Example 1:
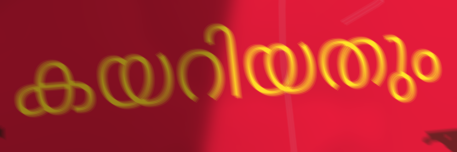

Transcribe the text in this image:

കയറിയതും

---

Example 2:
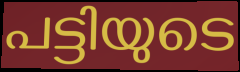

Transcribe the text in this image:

പട്ടിയുടെ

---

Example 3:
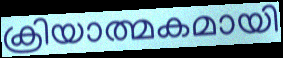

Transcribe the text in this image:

ക്രിയാത്മകമായി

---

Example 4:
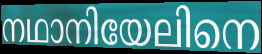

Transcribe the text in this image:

നഥാനിയേലിനെ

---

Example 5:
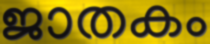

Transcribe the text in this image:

ജാതകം